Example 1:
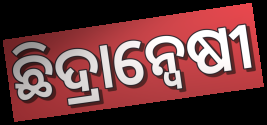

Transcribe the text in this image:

ଛିଦ୍ରାନ୍ୱେଷୀ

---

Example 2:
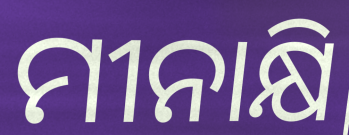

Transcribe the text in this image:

ମୀନାକ୍ଷି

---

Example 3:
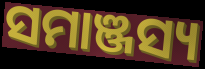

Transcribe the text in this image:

ସମାଞ୍ଜସ୍ୟ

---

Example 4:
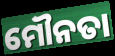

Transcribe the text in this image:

ମୌନତା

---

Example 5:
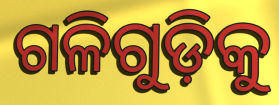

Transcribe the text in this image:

ଗଳିଗୁଡ଼ିକୁ